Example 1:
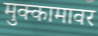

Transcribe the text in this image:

मुक्कामावर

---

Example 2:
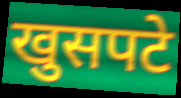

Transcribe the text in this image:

खुसपटे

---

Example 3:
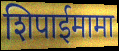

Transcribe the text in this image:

शिपाईमामा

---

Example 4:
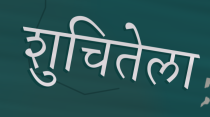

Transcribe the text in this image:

शुचितेला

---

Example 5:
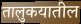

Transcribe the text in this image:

तालुकयातील